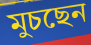
মুচছেন